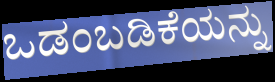
ಒಡಂಬಡಿಕೆಯನ್ನು